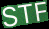
STF